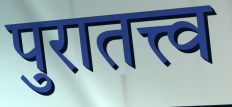
पुरातत्त्व